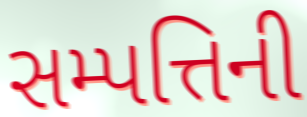
સમ્પત્તિની